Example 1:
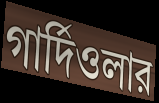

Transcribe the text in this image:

গার্দিওলার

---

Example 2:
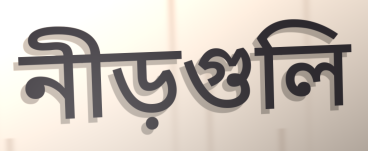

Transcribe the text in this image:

নীড়গুলি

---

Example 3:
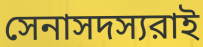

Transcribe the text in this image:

সেনাসদস্যরাই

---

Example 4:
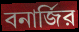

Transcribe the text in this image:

বনার্জির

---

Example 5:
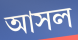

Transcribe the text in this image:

আসল